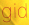
gid